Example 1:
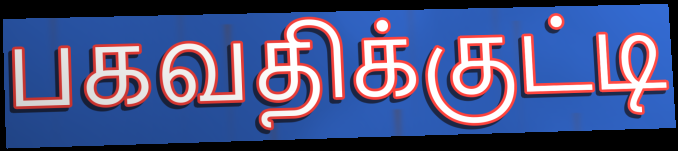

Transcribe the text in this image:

பகவதிக்குட்டி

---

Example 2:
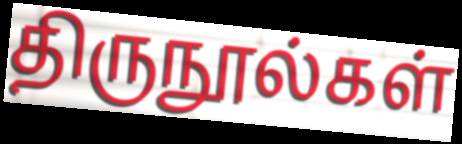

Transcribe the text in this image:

திருநூல்கள்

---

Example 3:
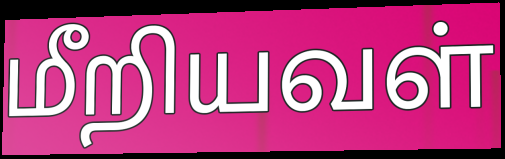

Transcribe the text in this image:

மீறியவள்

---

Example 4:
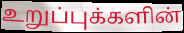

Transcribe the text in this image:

உறுப்புக்களின்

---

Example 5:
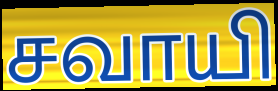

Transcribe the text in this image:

சவாயி